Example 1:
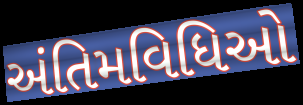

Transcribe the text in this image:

અંતિમવિધિઓ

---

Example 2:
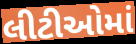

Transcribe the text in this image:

લીટીઓમાં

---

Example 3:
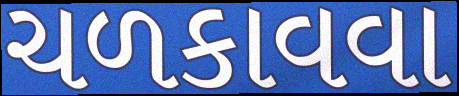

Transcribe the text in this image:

ચળકાવવા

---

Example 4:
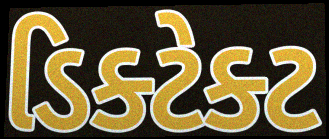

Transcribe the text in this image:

ડિક્ટેક્ટ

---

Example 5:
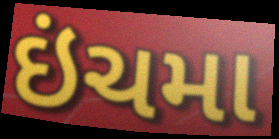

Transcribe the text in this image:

ઇંચમા